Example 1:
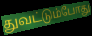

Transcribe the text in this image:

துவட்டும்போது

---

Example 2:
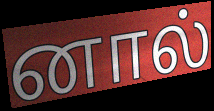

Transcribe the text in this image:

னால்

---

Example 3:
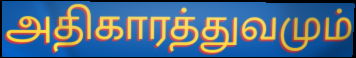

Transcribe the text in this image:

அதிகாரத்துவமும்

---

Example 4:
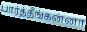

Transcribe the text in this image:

பார்த்தீங்கன்னா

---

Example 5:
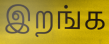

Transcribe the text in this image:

இறங்க